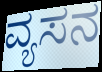
ವ್ಯಸನ